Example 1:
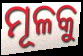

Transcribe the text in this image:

ମୂଳକୁ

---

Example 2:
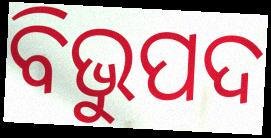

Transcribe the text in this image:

ବିଭୁପଦ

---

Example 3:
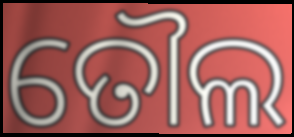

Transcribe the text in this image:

ତୌଲ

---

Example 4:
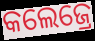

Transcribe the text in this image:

କଲେଜ୍ରେ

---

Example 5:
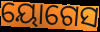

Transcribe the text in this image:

ୟୋଗେସ